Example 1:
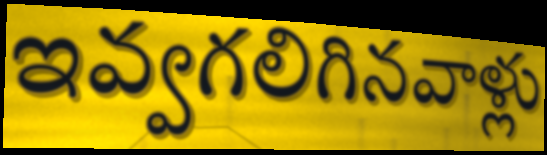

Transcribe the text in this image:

ఇవ్వగలిగినవాళ్లు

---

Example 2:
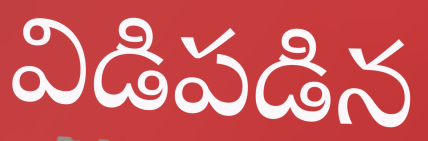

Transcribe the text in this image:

విడిపడిన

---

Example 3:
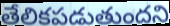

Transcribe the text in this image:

తేలికపడుతుందని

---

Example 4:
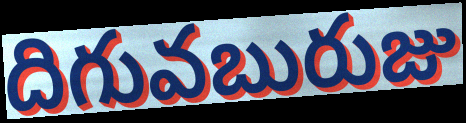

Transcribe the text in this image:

దిగువబురుజు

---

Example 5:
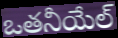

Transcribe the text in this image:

ఒతనీయేల్